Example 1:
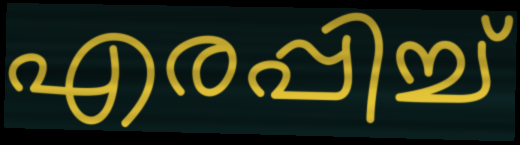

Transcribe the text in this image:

എരപ്പിച്ച്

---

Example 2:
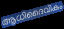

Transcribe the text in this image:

ആധിദൈവികം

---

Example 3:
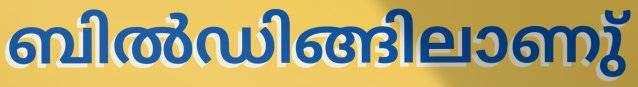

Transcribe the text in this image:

ബിൽഡിങ്ങിലാണു്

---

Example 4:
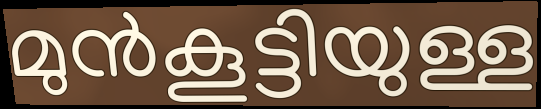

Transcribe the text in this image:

മുൻകൂട്ടിയുള്ള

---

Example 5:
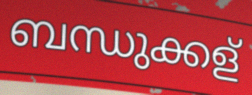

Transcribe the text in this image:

ബന്ധുക്കള്